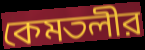
কেমতলীর